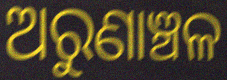
ଅରୁଣାଞ୍ଚଳ